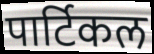
पार्टिकल